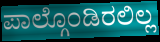
ಪಾಲ್ಗೊಂಡಿರಲಿಲ್ಲ